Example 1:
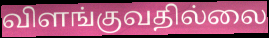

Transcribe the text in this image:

விளங்குவதில்லை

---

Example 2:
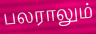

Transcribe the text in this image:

பலராலும்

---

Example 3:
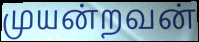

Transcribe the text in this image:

முயன்றவன்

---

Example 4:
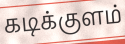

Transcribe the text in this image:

கடிக்குளம்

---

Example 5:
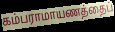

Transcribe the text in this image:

கம்பராமாயணத்தைப்